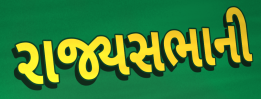
રાજ્યસભાની